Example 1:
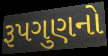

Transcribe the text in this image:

રૂપગુણનો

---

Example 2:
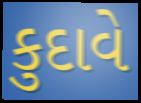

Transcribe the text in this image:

કુદાવે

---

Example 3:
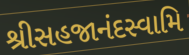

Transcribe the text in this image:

શ્રીસહજાનંદસ્વામિ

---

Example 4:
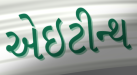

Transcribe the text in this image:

એઇટીન્થ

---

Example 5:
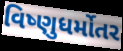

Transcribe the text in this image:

વિષ્ણુધર્મોતર